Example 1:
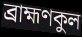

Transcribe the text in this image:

ব্রাহ্মণকুল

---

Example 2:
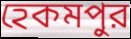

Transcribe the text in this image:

হেকমপুর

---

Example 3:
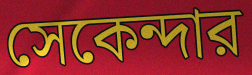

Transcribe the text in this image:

সেকেন্দার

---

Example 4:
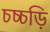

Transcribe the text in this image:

চচ্চড়ি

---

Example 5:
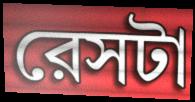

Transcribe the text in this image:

রেসটা